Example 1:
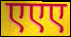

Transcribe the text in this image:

एएए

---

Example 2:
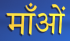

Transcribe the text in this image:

माँओं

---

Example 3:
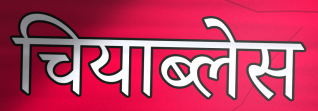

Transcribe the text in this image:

चियाब्लेस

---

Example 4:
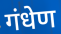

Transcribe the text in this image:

गंधेण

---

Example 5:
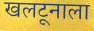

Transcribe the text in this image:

खलटूनाला